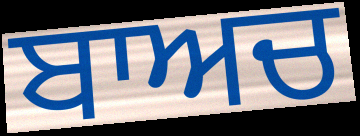
ਬਾਅਚ